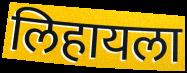
लिहायला